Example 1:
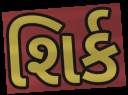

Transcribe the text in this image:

શિર્ક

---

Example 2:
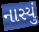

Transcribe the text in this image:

નાસ્યું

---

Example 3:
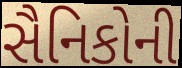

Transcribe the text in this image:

સૈનિકોની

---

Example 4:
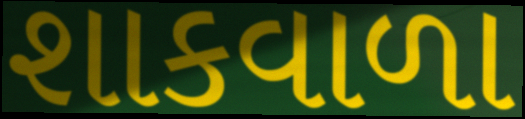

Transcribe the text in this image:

શાકવાળા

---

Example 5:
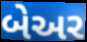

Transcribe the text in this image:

બેઅર